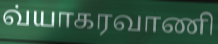
வ்யாகரவாணி